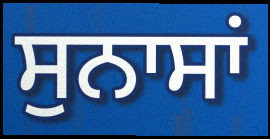
ਸੁਨਾਸਾਂ